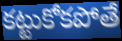
కట్టుకోకపోతే